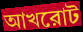
আখরোট